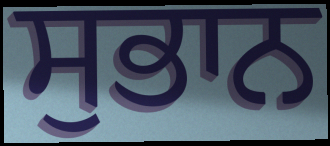
ਸੁਭਾਨ